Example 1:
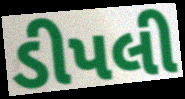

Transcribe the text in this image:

ડીપલી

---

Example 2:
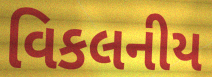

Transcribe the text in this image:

વિકલનીય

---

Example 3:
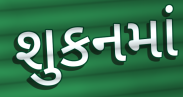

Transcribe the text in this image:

શુકનમાં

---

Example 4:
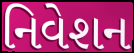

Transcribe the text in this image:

નિવેશન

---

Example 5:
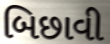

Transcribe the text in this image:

બિછાવી